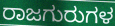
ರಾಜಗುರುಗಳ